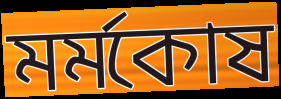
মর্মকোষ